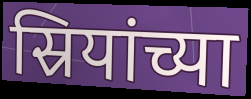
स्रियांच्या